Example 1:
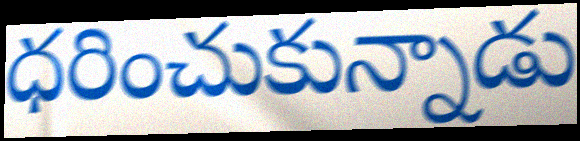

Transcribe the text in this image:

ధరించుకున్నాడు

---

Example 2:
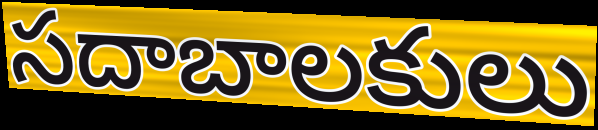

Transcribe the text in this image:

సదాబాలకులు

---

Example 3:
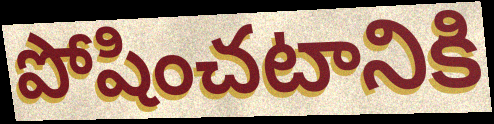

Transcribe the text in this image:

పోషించటానికి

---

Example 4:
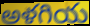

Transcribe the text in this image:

అళగియ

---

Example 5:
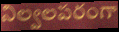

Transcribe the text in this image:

నిల్వలపరంగా